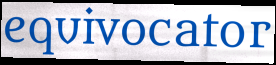
equivocator